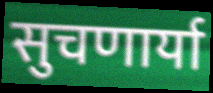
सुचणार्या